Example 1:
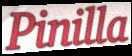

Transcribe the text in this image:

Pinilla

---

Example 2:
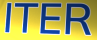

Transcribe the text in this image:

ITER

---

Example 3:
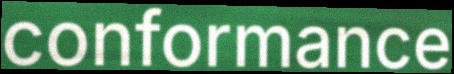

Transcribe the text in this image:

conformance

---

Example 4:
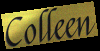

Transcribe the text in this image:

Colleen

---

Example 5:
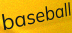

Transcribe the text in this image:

baseball